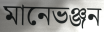
মানেভঞ্জন